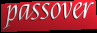
passover